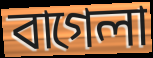
বাগেলা